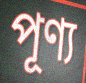
পূণ্য